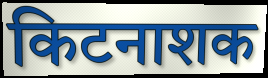
किटनाशक